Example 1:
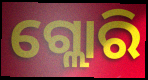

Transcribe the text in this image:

ଗ୍ଲୋରି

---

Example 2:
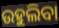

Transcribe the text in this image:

ଉହୁଲିବା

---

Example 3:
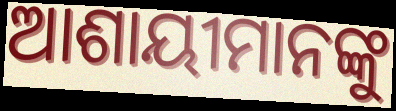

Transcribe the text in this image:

ଆଶାୟୀମାନଙ୍କୁ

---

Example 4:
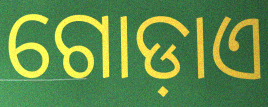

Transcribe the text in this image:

ଗୋଡ଼ାଏ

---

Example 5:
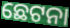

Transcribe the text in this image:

ଛେଟନା